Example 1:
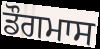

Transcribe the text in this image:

ਡੌਗਮਾਸ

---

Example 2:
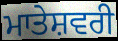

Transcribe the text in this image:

ਮਾਤੇਸ਼ਵਰੀ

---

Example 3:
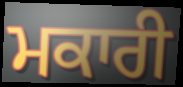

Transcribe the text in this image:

ਮਕਾਰੀ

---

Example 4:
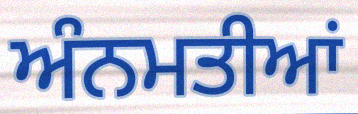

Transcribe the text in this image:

ਅੰਨਮਤੀਆਂ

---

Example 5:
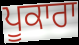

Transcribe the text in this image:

ਪੂਕਾਰਾ